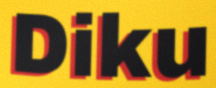
Diku